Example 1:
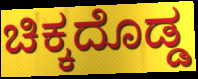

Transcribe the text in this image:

ಚಿಕ್ಕದೊಡ್ಡ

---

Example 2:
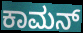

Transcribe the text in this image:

ಕಾಮನ್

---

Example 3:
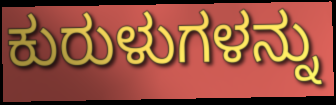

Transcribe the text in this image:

ಕುರುಳುಗಳನ್ನು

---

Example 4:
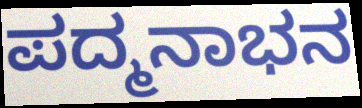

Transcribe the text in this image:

ಪದ್ಮನಾಭನ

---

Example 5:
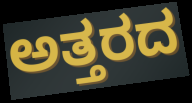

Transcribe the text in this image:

ಅತ್ತರದ